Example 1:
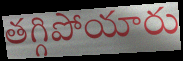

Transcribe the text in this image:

తగ్గిపోయారు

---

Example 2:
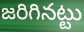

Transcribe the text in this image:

జరిగినట్టు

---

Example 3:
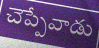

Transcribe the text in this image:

చెప్పేవాడు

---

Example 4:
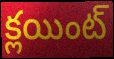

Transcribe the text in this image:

క్లయింట్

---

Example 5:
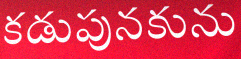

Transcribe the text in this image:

కడుపునకును